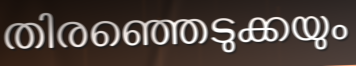
തിരഞ്ഞെടുക്കയും